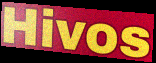
Hivos